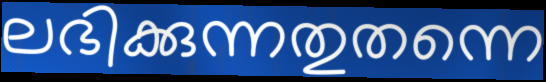
ലഭിക്കുന്നതുതന്നെ